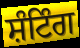
ਸ਼ੰਟਿੰਗ